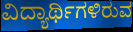
ವಿದ್ಯಾರ್ಥಿಗಳಿರುವ